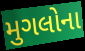
મુગલોના